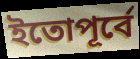
ইতোপূর্বে